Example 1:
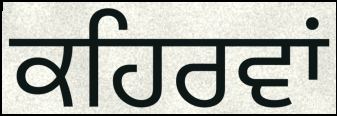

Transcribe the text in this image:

ਕਹਿਰਵਾਂ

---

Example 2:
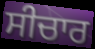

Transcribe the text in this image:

ਸੀਚਾਰ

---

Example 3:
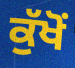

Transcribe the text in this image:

ਕੁੱਖੋਂ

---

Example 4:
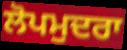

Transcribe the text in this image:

ਲੋਪਮੁਦਰਾ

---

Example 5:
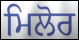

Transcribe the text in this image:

ਮਿਲੋਰ